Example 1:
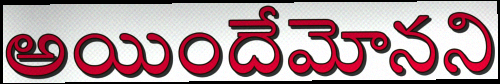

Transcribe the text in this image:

అయిందేమోనని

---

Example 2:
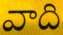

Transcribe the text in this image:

వాది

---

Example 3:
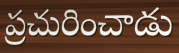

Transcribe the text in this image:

ప్రచురించాడు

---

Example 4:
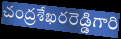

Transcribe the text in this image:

చంద్రశేఖరరెడ్డిగారి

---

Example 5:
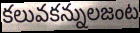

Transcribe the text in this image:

కలువకన్నులజంట